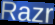
Razr